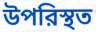
উপরিস্থত